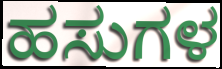
ಹಸುಗಳ